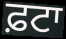
ਫ਼ਟਾ